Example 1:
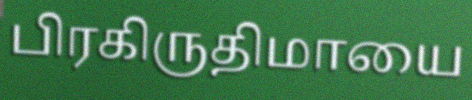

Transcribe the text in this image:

பிரகிருதிமாயை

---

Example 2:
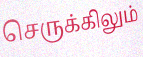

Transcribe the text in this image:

செருக்கிலும்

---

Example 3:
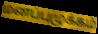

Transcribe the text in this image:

மனப்புழுக்கம்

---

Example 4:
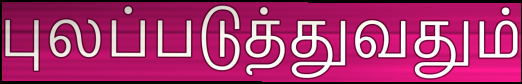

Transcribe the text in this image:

புலப்படுத்துவதும்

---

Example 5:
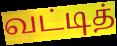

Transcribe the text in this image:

வட்டித்